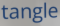
tangle